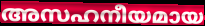
അസഹനീയമായ